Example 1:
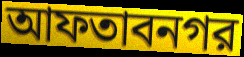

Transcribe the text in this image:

আফতাবনগর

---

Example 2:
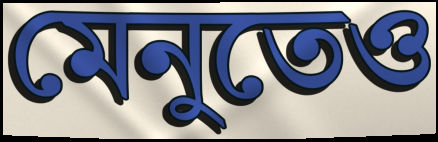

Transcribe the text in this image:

মেনুতেও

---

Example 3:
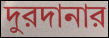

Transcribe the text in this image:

দুরদানার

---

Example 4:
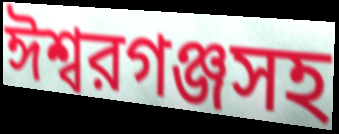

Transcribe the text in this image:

ঈশ্বরগঞ্জসহ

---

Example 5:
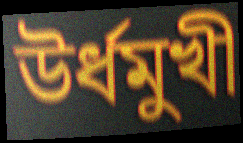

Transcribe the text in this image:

উর্ধমুখী